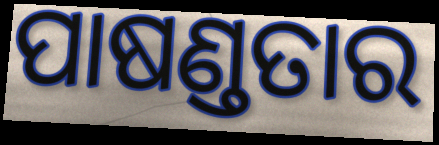
ପାଷଣ୍ଡତାର